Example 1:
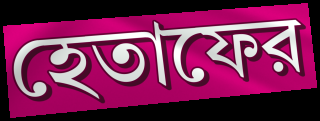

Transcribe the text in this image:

হেতাফের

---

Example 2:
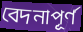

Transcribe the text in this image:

বেদনাপূর্ণ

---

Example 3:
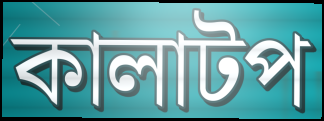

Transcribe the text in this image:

কালাটপ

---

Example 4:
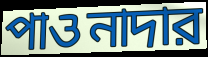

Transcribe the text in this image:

পাওনাদার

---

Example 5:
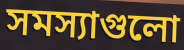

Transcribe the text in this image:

সমস্যাগুলো